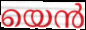
യെൻ